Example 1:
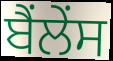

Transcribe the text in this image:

ਬੈਂਲੇਂਸ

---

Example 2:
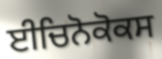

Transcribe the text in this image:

ਈਚਿਨੋਕੋਕਸ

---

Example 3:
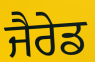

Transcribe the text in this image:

ਜੈਰੇਡ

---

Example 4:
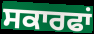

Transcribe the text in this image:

ਸਕਾਰਫਾਂ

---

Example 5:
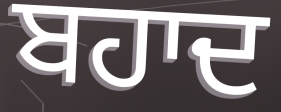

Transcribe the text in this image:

ਬਹਾਦ